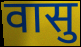
वासु